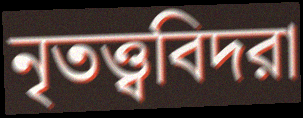
নৃতত্ত্ববিদরা